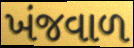
ખંજવાળ